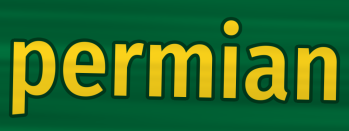
permian